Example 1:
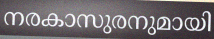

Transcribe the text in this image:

നരകാസുരനുമായി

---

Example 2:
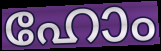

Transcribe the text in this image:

ഹോം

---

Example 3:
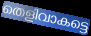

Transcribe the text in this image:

തെളിവാകട്ടെ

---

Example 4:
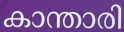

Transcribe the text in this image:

കാന്താരി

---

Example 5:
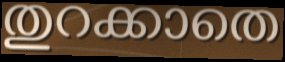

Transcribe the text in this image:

തുറക്കാതെ